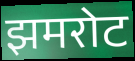
झमरोट